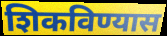
शिकविण्यास